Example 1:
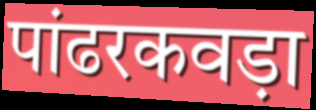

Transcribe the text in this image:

पांढरकवड़ा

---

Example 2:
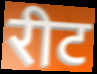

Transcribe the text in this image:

रीट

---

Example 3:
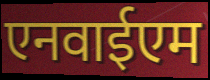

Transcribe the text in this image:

एनवाईएम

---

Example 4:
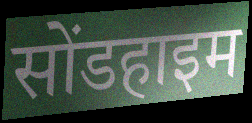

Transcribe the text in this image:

सोंडहाइम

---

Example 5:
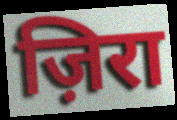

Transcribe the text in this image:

ज़िरा